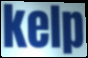
kelp